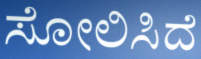
ಸೋಲಿಸಿದೆ